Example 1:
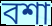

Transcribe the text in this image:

বশা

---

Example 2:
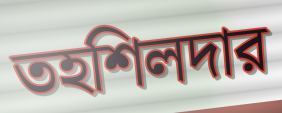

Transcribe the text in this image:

তহশিলদার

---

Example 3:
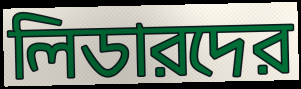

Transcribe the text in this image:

লিডারদের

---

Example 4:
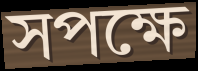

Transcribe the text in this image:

সপক্ষে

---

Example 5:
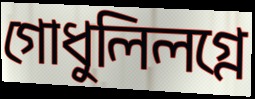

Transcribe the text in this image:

গোধুলিলগ্নে